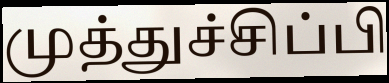
முத்துச்சிப்பி